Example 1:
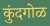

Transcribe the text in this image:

कुंदगोळ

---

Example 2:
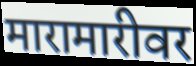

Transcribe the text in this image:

मारामारीवर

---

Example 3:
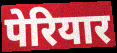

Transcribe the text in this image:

पेरियार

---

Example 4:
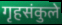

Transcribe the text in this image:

गृहसंकुले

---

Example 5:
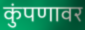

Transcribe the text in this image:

कुंपणावर